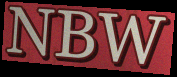
NBW